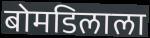
बोमडिलाला